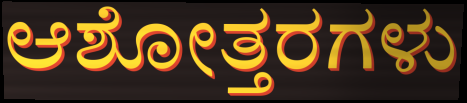
ಆಶೋತ್ತರಗಳು